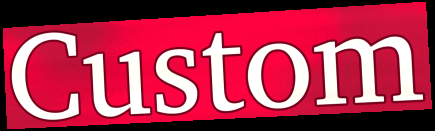
Custom